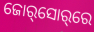
ଜୋର୍‌ସୋର୍‌ରେ